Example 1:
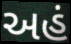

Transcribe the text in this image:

અહં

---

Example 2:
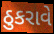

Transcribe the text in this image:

ઠુકરાવે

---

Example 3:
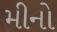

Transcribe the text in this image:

મીનો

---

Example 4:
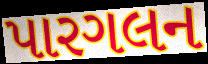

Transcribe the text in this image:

પારગલન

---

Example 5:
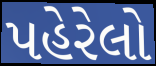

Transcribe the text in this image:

પહેરેલો